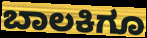
ಬಾಲಕಿಗೂ